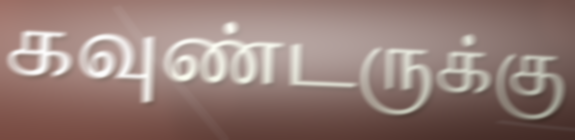
கவுண்டருக்கு